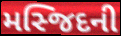
મસ્જિદની